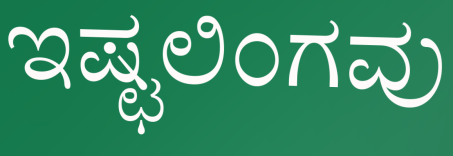
ಇಷ್ಟಲಿಂಗವು